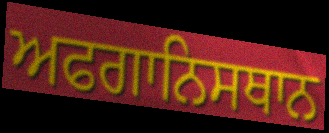
ਅਫਗਾਨਿਸਥਾਨ